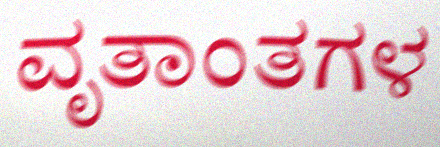
ವೃತಾಂತಗಳ